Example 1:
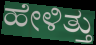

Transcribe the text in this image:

ಹೇಳಿತ್ತು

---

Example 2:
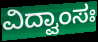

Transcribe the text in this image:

ವಿದ್ವಾಂಸಃ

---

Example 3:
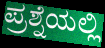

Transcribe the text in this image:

ಪ್ರಶ್ನೆಯಲ್ಲಿ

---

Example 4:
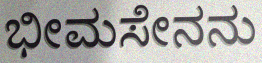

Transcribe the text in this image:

ಭೀಮಸೇನನು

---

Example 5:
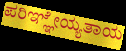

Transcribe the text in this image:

ಪರಿಞ್ಞೇಯ್ಯತಾಯ